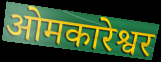
ओमकारेश्वर